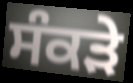
ਸੰਕੜੇ